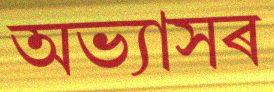
অভ্যাসৰ